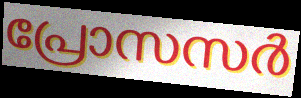
പ്രോസസർ